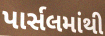
પાર્સલમાંથી